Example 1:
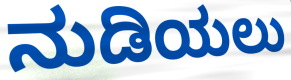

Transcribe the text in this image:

ನುಡಿಯಲು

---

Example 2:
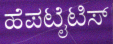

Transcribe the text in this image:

ಹೆಪಟೈಟಿಸ್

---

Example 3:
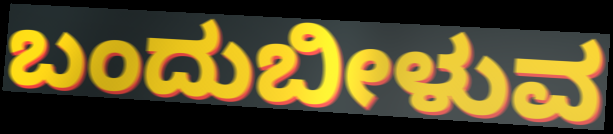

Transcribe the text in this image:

ಬಂದುಬೀಳುವ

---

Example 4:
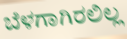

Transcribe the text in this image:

ಬೆಳಗಾಗಿರಲಿಲ್ಲ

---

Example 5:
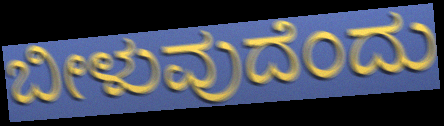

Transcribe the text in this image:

ಬೀಳುವುದೆಂದು